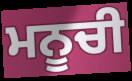
ਮਨੂਚੀ